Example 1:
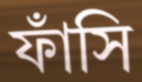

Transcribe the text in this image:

ফাঁসি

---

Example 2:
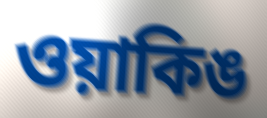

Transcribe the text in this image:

ওয়াকিঙ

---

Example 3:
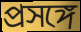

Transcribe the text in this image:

প্রসঙ্গে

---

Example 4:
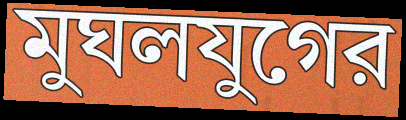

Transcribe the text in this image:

মুঘলযুগের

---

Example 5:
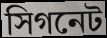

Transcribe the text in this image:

সিগনেট